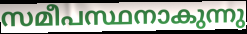
സമീപസ്ഥനാകുന്നു